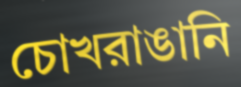
চোখরাঙানি